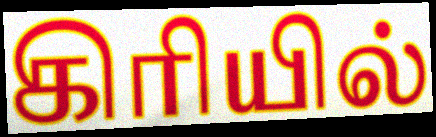
கிரியில்